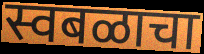
स्वबळाचा